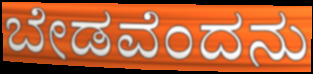
ಬೇಡವೆಂದನು